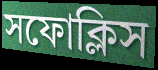
সফোক্লিস